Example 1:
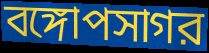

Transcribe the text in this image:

বঙ্গোপসাগর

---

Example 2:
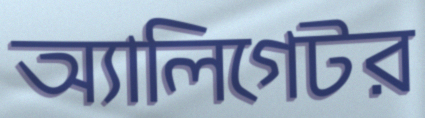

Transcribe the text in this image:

অ্যালিগেটর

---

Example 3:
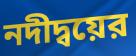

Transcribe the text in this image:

নদীদ্বয়ের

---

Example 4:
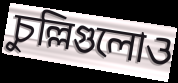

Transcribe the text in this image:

চুল্লিগুলোও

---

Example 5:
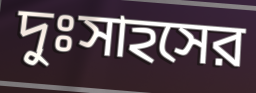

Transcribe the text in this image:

দুঃসাহসের